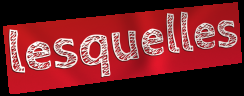
lesquelles